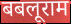
बबलूराम